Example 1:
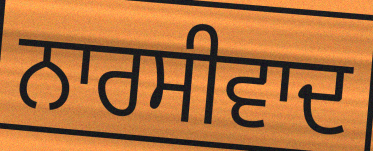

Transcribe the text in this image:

ਨਾਰਸੀਵਾਦ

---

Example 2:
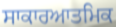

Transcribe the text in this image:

ਸਾਕਾਰਆਤਮਿਕ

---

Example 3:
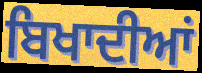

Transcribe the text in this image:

ਬਿਖਾਦੀਆਂ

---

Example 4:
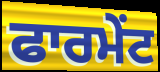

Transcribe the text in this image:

ਫਾਰਮੇਂਟ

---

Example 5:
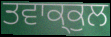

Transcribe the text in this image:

ਤਵਾਕ੍ਕੁਲ